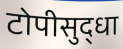
टोपीसुद्धा